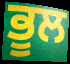
ਭੂਲ